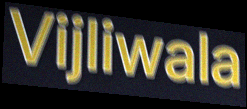
Vijliwala